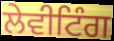
ਲੇਵੀਟਿੰਗ